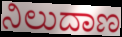
ನಿಲುದಾಣ